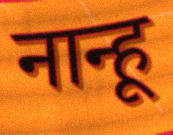
नान्हू